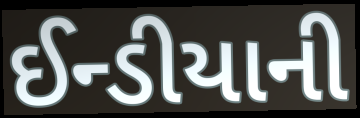
ઈન્ડીયાની